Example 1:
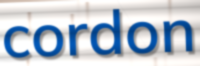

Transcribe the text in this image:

cordon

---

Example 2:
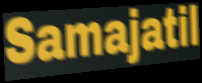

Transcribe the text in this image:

Samajatil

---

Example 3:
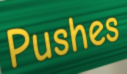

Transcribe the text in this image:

Pushes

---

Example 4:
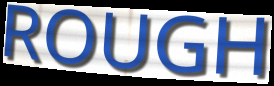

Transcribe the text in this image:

ROUGH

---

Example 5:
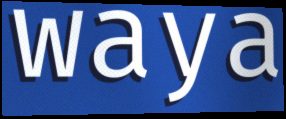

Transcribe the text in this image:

waya